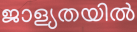
ജാള്യതയിൽ